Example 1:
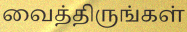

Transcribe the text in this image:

வைத்திருங்கள்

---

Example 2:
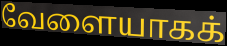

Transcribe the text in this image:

வேளையாகக்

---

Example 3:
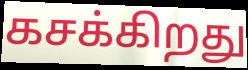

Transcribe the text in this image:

கசக்கிறது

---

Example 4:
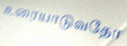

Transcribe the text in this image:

உரையாடுவதோ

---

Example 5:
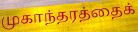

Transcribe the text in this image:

முகாந்தரத்தைக்